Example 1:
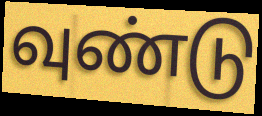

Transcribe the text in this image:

வுண்டு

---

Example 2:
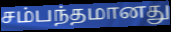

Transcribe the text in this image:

சம்பந்தமானது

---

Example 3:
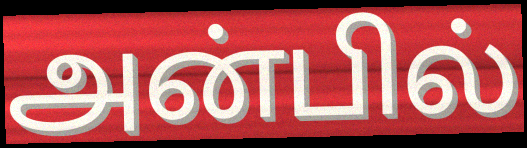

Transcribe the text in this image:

அன்பில்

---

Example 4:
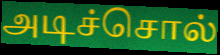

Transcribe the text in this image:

அடிச்சொல்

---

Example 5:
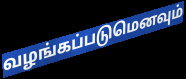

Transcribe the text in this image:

வழங்கப்படுமெனவும்